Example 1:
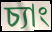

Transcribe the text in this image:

চ্যাং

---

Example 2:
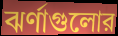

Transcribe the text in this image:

ঝর্ণাগুলোর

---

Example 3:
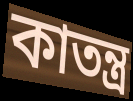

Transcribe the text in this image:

কাতন্ত্র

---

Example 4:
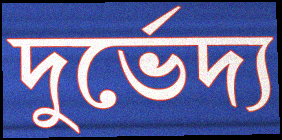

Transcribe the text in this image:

দুর্ভেদ্য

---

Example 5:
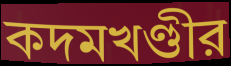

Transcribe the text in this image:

কদমখণ্ডীর